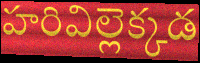
హరివిల్లెక్కడ